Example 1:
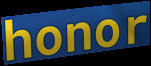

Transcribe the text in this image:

honor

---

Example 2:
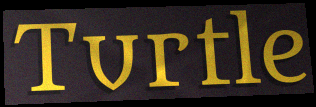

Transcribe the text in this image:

Turtle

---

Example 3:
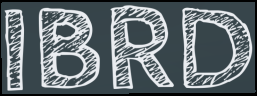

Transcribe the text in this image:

IBRD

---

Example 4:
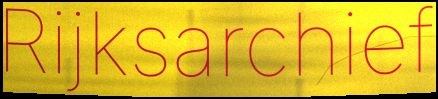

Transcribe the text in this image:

Rijksarchief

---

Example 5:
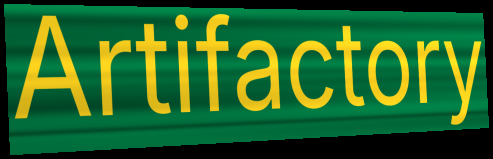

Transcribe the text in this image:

Artifactory